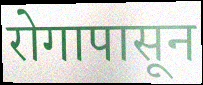
रोगापासून